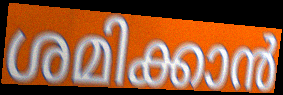
ശമിക്കാൻ